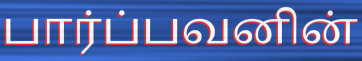
பார்ப்பவனின்